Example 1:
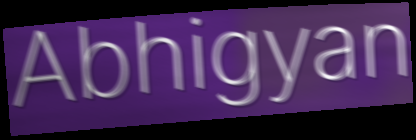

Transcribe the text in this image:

Abhigyan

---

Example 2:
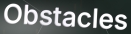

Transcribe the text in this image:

Obstacles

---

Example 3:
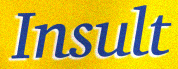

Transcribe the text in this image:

Insult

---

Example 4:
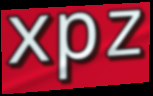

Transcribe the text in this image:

xpz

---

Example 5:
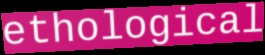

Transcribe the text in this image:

ethological